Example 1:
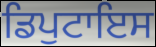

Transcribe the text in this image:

ਡਿਪੁਟਾਇਸ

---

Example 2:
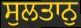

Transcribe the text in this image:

ਸੁਲਤਾਨੁ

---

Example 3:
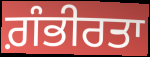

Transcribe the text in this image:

ਗ਼ੰਭੀਰਤਾ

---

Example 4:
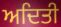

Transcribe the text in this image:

ਅਦਿਤੀ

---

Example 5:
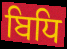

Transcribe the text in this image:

ਬਿਧਿ